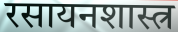
रसायनशास्त्र